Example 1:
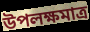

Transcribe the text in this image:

উপলক্ষমাত্র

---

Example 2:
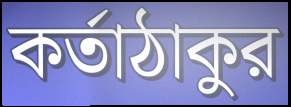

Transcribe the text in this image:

কর্তাঠাকুর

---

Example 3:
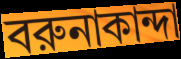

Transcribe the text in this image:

বরুনাকান্দা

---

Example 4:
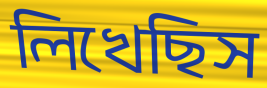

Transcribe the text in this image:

লিখেছিস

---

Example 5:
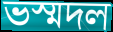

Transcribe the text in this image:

ভস্মদল